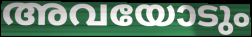
അവയോടും